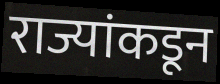
राज्यांकडून